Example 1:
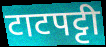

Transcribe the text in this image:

टाटपट्टी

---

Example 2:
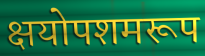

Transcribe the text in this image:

क्षयोपशमरूप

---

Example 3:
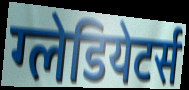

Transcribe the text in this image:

ग्लेडियेटर्स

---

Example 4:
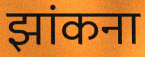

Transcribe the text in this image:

झांकना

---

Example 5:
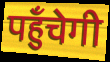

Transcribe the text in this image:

पहुँचेगी